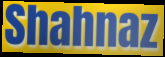
Shahnaz